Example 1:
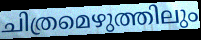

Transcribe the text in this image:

ചിത്രമെഴുത്തിലും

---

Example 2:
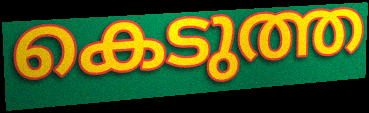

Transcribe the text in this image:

കെടുത്ത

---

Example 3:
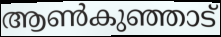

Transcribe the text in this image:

ആൺകുഞ്ഞാട്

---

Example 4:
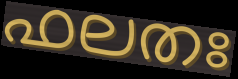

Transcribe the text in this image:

ഫലതഃ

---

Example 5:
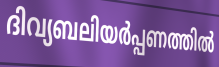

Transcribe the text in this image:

ദിവ്യബലിയർപ്പണത്തിൽ